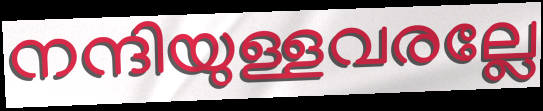
നന്ദിയുള്ളവരല്ലേ